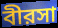
বীরসা